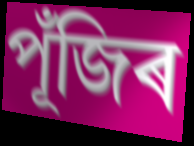
পূঁজিৰ